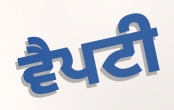
ਵੈਪਟੀ